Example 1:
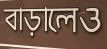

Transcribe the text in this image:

বাড়ালেও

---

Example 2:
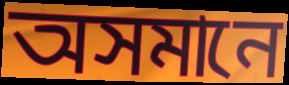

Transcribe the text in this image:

অসমানে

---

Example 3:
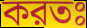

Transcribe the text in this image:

করতঃ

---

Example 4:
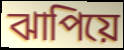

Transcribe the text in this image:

ঝাপিয়ে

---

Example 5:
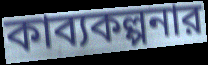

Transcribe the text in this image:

কাব্যকল্পনার